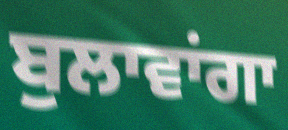
ਬੁਲਾਵਾਂਗਾ